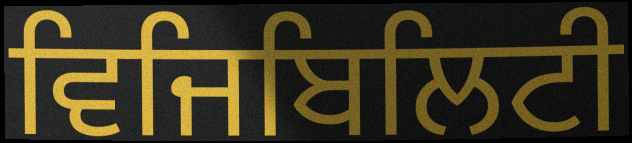
ਵਿਜਿਬਿਲਿਟੀ